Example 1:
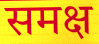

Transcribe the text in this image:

समक्ष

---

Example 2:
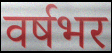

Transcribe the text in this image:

वर्षभर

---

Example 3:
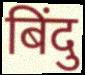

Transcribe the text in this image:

बिंदु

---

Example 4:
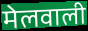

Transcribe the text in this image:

मेलवाली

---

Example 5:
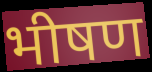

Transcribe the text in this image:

भीषण